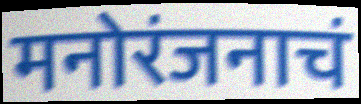
मनोरंजनाचं